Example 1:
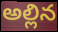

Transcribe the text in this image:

అల్లిన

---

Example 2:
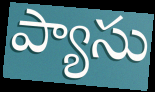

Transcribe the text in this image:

ప్యాసు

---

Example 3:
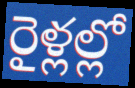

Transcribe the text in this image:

రైళ్లల్లో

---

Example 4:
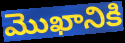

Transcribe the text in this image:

మొఖానికి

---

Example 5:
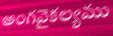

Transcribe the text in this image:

అంగవైకల్యము